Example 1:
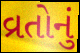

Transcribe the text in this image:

વ્રતોનું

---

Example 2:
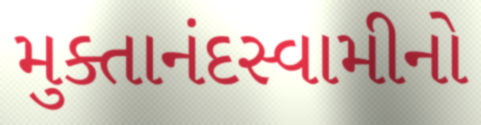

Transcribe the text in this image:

મુક્તાનંદસ્વામીનો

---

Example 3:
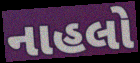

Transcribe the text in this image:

નાહલો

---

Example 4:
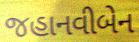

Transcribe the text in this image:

જહાનવીબેન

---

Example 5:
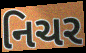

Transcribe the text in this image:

નિચર